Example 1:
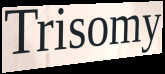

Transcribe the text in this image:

Trisomy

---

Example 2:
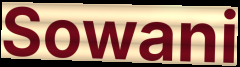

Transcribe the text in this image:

Sowani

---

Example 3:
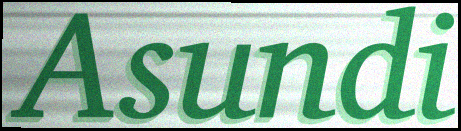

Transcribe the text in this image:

Asundi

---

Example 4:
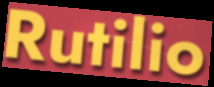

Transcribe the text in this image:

Rutilio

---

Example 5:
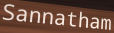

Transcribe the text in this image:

Sannatham